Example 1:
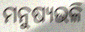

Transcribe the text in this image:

ମନୁଷ୍ୟଭଳି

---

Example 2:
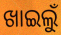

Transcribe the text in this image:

ଖାଇଲୁଁ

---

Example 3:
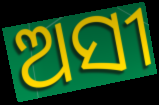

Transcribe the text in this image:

ଅସୀ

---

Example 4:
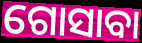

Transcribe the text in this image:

ଗୋସାବା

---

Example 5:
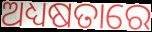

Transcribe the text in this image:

ଅଧ୍ୟଷତାରେ